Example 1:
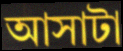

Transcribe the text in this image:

আসাটা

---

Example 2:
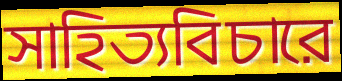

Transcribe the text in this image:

সাহিত্যবিচারে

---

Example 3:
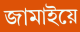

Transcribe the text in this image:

জামাইয়ে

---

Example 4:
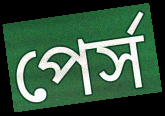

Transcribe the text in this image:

পের্স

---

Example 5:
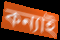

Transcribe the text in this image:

কন্যাই